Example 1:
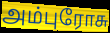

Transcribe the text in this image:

அம்புரோசு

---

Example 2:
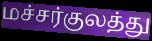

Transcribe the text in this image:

மச்சர்குலத்து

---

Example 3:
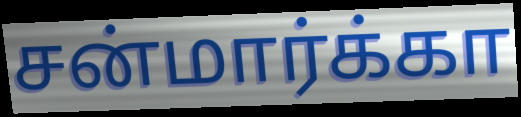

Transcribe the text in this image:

சன்மார்க்கா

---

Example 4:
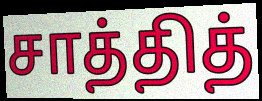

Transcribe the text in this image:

சாத்தித்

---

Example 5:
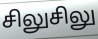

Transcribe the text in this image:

சிலுசிலு